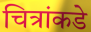
चित्रांकडे